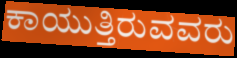
ಕಾಯುತ್ತಿರುವವರು